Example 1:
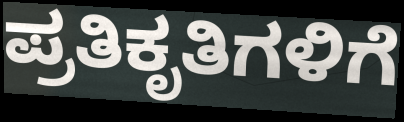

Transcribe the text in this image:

ಪ್ರತಿಕೃತಿಗಳಿಗೆ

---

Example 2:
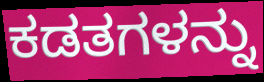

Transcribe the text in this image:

ಕಡತಗಳನ್ನು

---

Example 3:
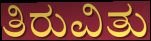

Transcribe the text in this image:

ತಿರುವಿತು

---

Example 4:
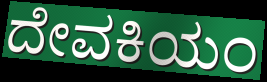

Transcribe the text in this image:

ದೇವಕಿಯಂ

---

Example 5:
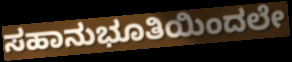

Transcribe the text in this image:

ಸಹಾನುಭೂತಿಯಿಂದಲೇ